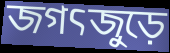
জগৎজুড়ে